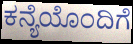
ಕನ್ಯೆಯೊಂದಿಗೆ